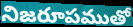
నిజరూపముతో